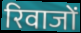
रिवाजों